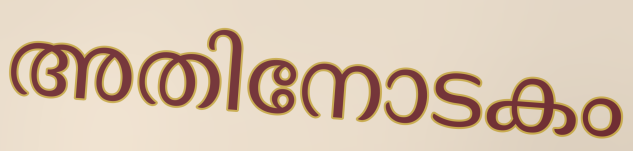
അതിനോടകം